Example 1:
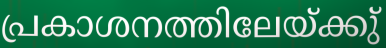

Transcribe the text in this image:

പ്രകാശനത്തിലേയ്ക്കു്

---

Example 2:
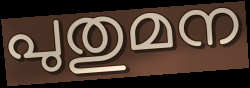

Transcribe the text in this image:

പുതുമന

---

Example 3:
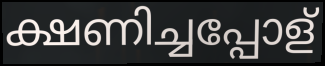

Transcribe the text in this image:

ക്ഷണിച്ചപ്പോള്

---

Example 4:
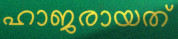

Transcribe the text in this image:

ഹാജരായത്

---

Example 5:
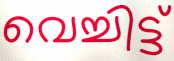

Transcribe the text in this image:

വെച്ചിട്ട്